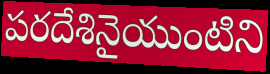
పరదేశినైయుంటిని